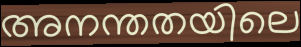
അനന്തതയിലെ